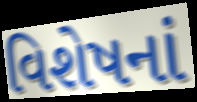
વિશેષનાં